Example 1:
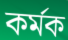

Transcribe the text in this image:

কৰ্মক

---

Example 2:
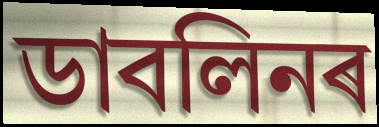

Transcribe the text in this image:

ডাবলিনৰ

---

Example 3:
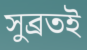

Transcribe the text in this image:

সুব্ৰতই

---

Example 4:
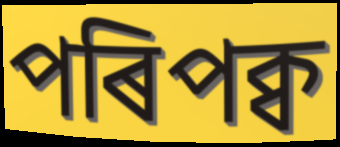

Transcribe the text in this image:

পৰিপক্ব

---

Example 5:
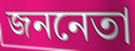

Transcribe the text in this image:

জননেতা